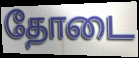
தோடை